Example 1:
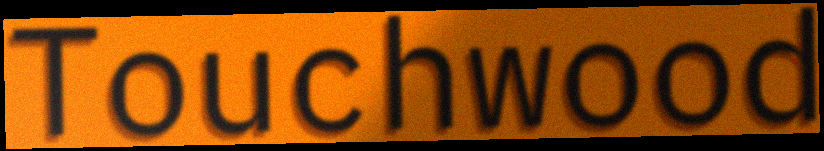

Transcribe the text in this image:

Touchwood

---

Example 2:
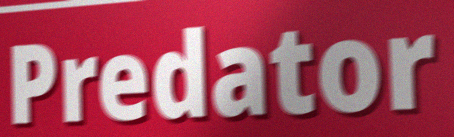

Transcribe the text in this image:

Predator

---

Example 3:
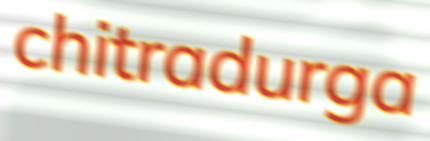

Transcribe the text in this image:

chitradurga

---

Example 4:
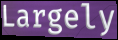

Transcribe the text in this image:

Largely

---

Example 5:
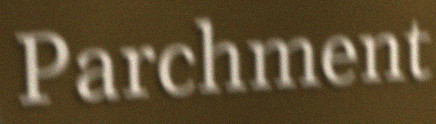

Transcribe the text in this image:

Parchment